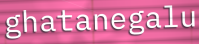
ghatanegalu